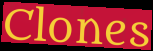
Clones